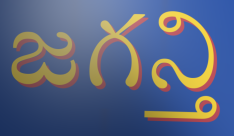
జగన్తి